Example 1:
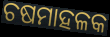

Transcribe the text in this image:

ଚଷମାହଳକ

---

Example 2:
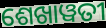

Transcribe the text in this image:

ଶେଖାୱତୀ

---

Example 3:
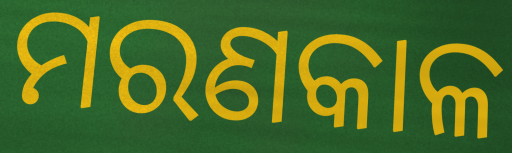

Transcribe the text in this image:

ମରଣକାଳ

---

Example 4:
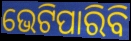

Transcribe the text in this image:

ଭେଟିପାରିବି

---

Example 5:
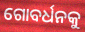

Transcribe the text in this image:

ଗୋବର୍ଧନକୁ